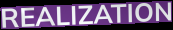
REALIZATION